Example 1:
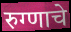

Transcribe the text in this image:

रुग्‍णाचे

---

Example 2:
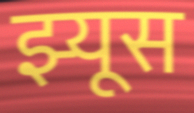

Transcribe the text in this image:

झ्यूस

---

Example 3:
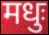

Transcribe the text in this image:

मधुः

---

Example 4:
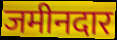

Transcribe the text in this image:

जमीनदार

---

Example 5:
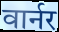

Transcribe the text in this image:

वार्नर